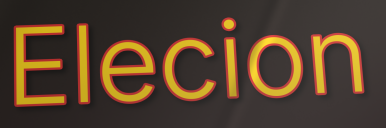
Elecion